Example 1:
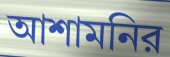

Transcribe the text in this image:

আশামনির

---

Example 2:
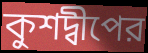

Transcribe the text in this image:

কুশদ্বীপের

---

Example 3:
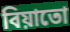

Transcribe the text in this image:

বিয়াতো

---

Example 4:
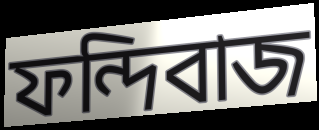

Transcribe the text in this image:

ফন্দিবাজ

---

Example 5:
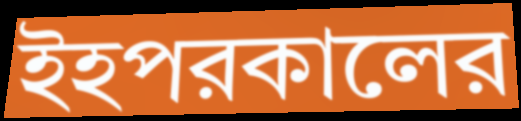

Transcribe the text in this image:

ইহপরকালের